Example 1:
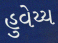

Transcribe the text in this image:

હુવેય્ય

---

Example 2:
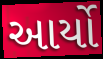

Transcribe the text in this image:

આર્યો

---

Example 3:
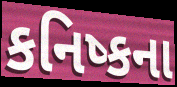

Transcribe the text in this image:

કનિષ્કના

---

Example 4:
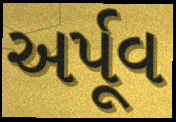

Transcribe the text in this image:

અર્પૂવ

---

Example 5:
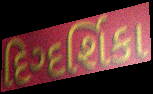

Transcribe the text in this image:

દિગ્દર્શિકા